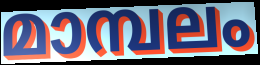
മാമ്പലം